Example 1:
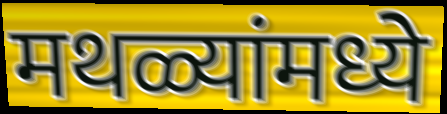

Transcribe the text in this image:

मथळ्यांमध्ये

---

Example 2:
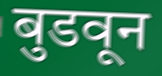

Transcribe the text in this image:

बुडवून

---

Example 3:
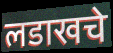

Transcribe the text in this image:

लडाखचे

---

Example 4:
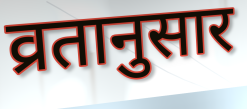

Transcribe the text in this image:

व्रतानुसार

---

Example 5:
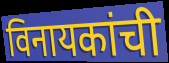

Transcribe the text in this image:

विनायकांची